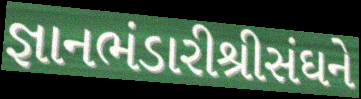
જ્ઞાનભંડારીશ્રીસંઘને